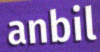
anbil